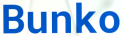
Bunko